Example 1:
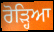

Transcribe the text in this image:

ਰੋੜ੍ਹਿਆ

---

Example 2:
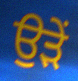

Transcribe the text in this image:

ਉੜੇਂ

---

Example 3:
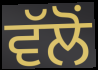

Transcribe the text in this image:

ਵੱਲੋਂ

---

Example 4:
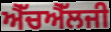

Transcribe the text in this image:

ਐੱਚਐੱਲਜੀ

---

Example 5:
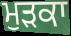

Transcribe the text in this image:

ਮੁੜਕਾ